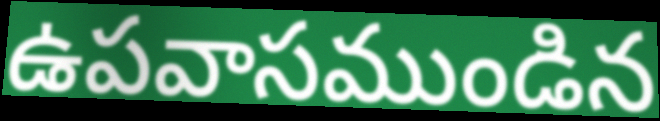
ఉపవాసముండిన